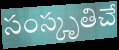
సంస్కృతిచే